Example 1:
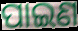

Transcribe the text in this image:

ପାଇଣ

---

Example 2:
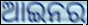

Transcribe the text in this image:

ଆଇନର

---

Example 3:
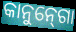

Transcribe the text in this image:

କାନୁନ୍‍ଗୋ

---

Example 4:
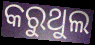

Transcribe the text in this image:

କରୁଥୁଲ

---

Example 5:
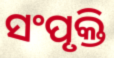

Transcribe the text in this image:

ସଂପୃକ୍ତି